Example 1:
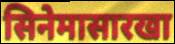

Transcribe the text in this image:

सिनेमासारखा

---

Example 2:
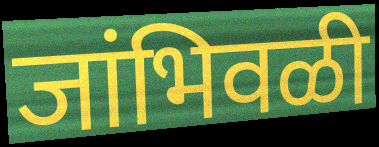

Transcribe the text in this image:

जांभिवळी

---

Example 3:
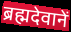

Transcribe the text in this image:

ब्रह्मदेवानें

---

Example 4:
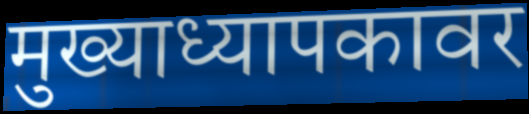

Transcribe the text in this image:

मुख्याध्यापकावर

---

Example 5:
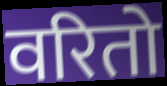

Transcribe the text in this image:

वरितो